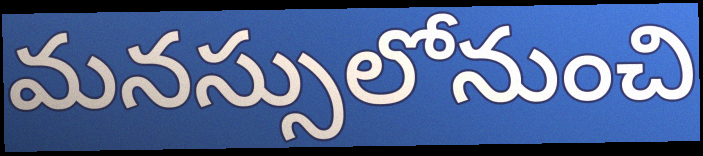
మనస్సులోనుంచి